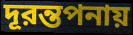
দূরন্তপনায়